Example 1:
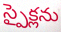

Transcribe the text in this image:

స్పైక్లను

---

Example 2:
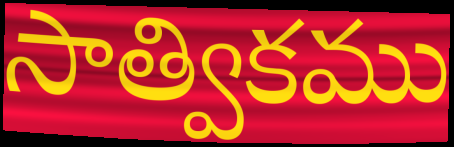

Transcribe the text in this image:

సాత్వికము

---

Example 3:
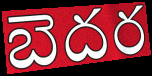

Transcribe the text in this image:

బెదర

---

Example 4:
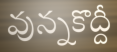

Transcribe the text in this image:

వున్నకొద్దీ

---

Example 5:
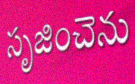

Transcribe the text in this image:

సృజించెను